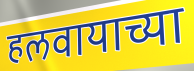
हलवायाच्या